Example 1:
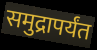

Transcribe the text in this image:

समुद्रापर्यंत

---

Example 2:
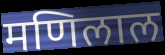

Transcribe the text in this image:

मणिलाल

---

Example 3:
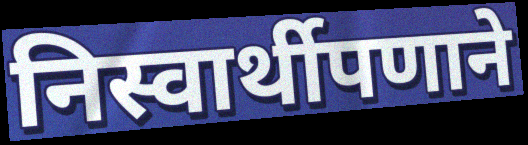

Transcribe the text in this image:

निस्वार्थीपणाने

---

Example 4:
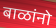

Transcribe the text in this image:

बाळांनो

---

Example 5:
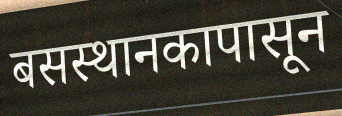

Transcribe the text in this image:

बसस्थानकापासून